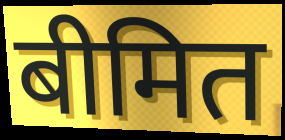
बीमित